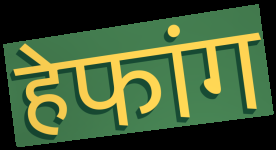
हेफांग